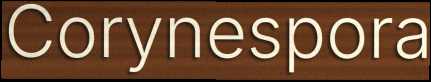
Corynespora